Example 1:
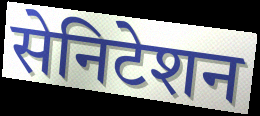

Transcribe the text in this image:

सेनिटेशन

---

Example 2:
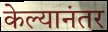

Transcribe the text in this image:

केल्यानंतर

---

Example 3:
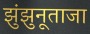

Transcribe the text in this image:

झुंझुनूताजा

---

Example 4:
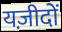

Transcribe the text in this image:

यज़ीदों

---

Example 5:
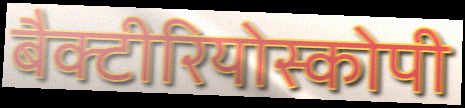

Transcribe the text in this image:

बैक्टीरियोस्कोपी